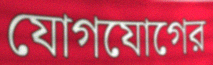
যোগযোগের